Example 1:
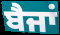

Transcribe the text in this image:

ਬੈਜਾਂ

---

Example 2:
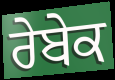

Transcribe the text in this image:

ਰੇਬੇਕ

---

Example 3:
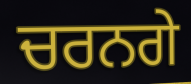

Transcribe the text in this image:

ਚਰਨਗੇ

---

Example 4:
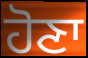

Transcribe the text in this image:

ਹੋਣਾ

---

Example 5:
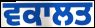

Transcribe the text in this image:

ਵਕਾਲਤ